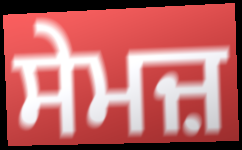
ਸੇਮਜ਼